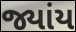
જ્યાંય